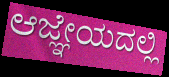
ಆಜ್ಞೇಯದಲ್ಲಿ